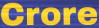
Crore